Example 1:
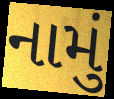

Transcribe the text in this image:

નામું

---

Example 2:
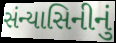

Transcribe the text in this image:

સંન્યાસિનીનું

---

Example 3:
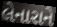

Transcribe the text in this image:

લેનારાને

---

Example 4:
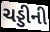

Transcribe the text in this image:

ચડ્ડીની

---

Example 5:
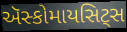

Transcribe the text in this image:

ઍસ્કોમાયસિટ્સ